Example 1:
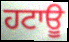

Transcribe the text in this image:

ਹਟਾਊ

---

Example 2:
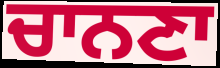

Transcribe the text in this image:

ਚਾਨਣਾ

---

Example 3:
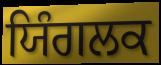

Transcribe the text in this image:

ਯਿੰਗਲਕ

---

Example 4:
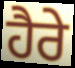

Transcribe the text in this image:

ਹੈਰੇ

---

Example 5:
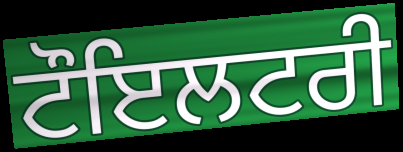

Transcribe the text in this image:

ਟੌਇਲਟਰੀ